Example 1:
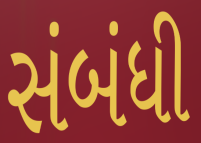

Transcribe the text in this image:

સંબંધી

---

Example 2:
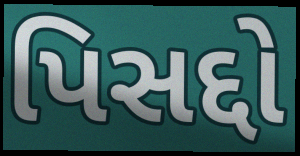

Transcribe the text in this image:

પિસદ્દો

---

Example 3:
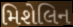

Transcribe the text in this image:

મિશેલિન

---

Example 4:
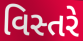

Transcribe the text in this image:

વિસ્તરે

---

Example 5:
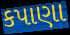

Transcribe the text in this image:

કપાણા